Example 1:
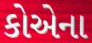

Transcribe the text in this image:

કોએના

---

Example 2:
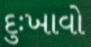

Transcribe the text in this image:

દુઃખાવો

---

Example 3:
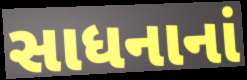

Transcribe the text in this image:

સાધનાનાં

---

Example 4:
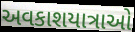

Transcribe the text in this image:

અવકાશયાત્રાઓ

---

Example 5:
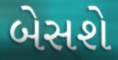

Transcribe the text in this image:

બેસશે